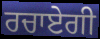
ਰਚਾਏਗੀ